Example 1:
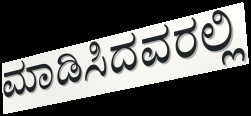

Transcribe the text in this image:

ಮಾಡಿಸಿದವರಲ್ಲಿ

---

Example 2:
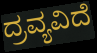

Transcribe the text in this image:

ದ್ರವ್ಯವಿದೆ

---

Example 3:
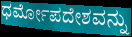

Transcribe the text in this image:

ಧರ್ಮೋಪದೇಶವನ್ನು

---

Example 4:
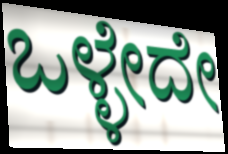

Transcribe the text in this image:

ಒಳ್ಳೇದೇ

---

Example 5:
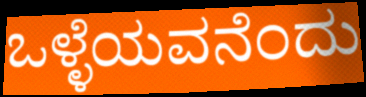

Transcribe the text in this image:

ಒಳ್ಳೆಯವನೆಂದು